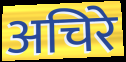
अचिरे